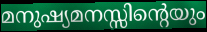
മനുഷ്യമനസ്സിന്റെയും